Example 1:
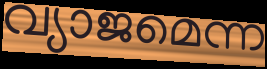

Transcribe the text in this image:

വ്യാജമെന്ന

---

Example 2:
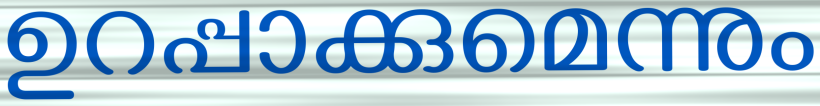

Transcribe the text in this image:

ഉറപ്പാക്കുമെന്നും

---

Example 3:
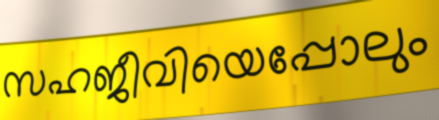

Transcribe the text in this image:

സഹജീവിയെപ്പോലും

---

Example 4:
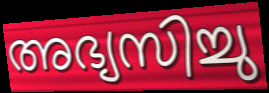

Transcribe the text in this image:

അഭ്യസിച്ചു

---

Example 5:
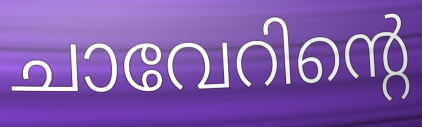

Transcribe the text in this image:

ചാവേറിന്റെ